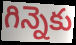
గిన్నెకు